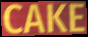
CAKE